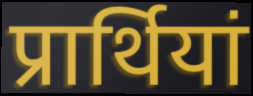
प्रार्थियां